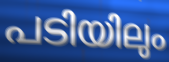
പടിയിലും